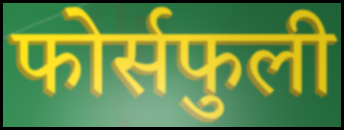
फोर्सफुली